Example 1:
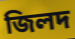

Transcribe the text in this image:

জিলদ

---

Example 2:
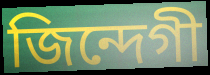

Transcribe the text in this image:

জিন্দেগী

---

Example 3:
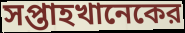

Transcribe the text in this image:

সপ্তাহখানেকের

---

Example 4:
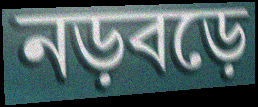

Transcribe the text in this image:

নড়বড়ে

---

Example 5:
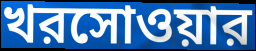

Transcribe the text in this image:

খরসোওয়ার